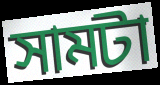
সামটা